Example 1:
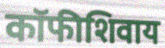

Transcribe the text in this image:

कॉफीशिवाय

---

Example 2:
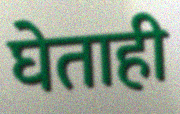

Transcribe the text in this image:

घेताही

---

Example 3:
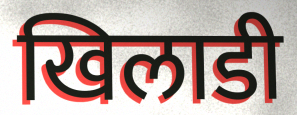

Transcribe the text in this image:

खिलाडी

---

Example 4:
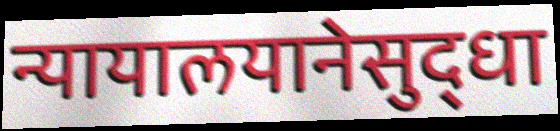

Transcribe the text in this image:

न्यायालयानेसुद्धा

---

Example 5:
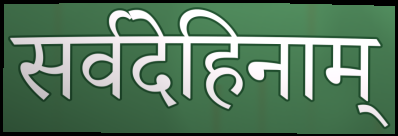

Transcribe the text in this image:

सर्वदेहिनाम्